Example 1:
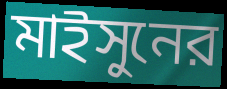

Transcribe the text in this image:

মাইসুনের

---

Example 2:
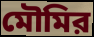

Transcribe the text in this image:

মৌমির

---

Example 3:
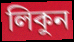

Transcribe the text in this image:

লিকুন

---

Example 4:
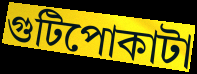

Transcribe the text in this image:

গুটিপোকাটা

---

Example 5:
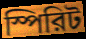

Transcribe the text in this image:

স্পিরিট